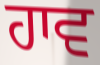
ਹਾਵ